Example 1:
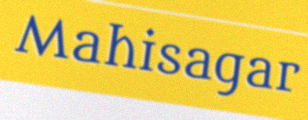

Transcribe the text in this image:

Mahisagar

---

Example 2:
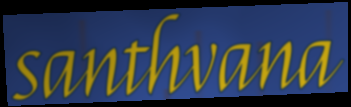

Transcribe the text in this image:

santhvana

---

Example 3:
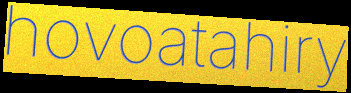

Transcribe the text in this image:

hovoatahiry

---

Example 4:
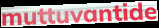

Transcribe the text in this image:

muttuvantide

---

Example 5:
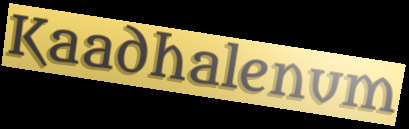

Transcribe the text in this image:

Kaadhalenum